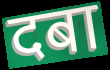
दबा